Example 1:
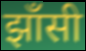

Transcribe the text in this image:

झाँसी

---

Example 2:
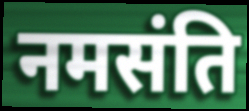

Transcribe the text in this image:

नमसंति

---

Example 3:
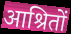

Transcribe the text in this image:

आश्रितों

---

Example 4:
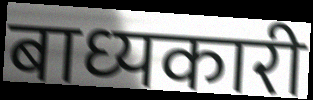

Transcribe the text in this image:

बाध्‍यकारी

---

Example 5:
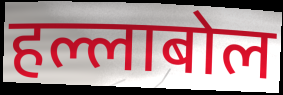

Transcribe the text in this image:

हल्लाबोल